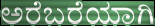
ಅರೆಬರೆಯಾಗಿ